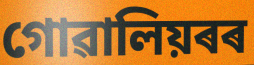
গোৱালিয়ৰৰ